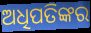
ଅଧିପତିଙ୍କର